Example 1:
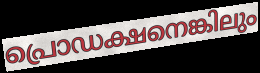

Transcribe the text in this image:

പ്രൊഡക്ഷനെങ്കിലും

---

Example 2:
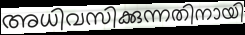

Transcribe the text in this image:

അധിവസിക്കുന്നതിനായി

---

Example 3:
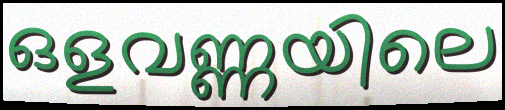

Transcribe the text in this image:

ഒളവണ്ണയിലെ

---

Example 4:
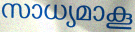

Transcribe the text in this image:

സാധ്യമാകൂ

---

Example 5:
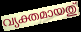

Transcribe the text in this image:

വ്യക്തമായതു്